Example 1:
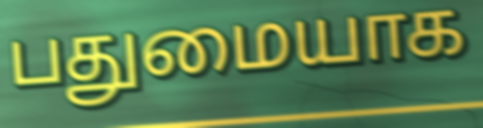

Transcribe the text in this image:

பதுமையாக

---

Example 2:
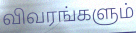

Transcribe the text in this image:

விவரங்களும்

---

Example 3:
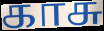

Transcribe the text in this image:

காசு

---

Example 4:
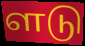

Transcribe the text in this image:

ளடு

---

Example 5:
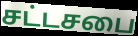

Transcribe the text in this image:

சட்டசபை